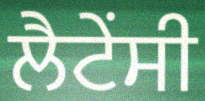
ਲੈਟੇਂਸੀ